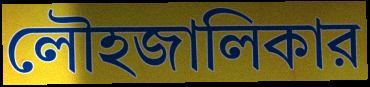
লৌহজালিকার